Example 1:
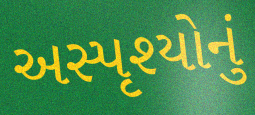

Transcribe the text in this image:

અસ્પૃશ્યોનું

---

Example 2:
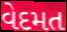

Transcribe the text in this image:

વેદમત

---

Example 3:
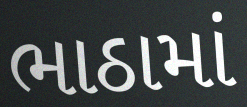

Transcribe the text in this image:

ભાઠામાં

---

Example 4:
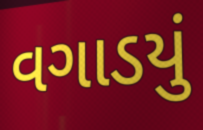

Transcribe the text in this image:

વગાડયું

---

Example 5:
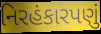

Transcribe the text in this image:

નિરહંકારપણું